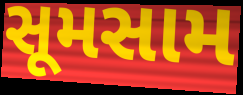
સૂમસામ